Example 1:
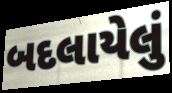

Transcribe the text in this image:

બદલાયેલું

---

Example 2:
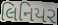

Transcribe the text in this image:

લિનિયર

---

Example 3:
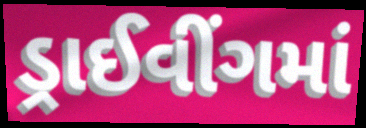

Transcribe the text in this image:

ડ્રાઈવીંગમાં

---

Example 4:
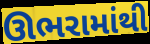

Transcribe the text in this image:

ઊભરામાંથી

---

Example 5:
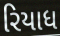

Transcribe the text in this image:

રિયાધ